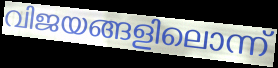
വിജയങ്ങളിലൊന്ന്